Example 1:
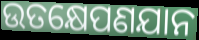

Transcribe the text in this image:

ଉତକ୍ଷେପଣଯାନ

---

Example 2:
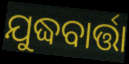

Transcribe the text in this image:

ଯୁଦ୍ଧବାର୍ତ୍ତା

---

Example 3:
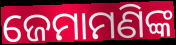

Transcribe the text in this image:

ଜେମାମଣିଙ୍କ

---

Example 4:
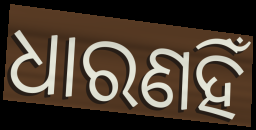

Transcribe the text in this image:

ଧାରଣହିଁ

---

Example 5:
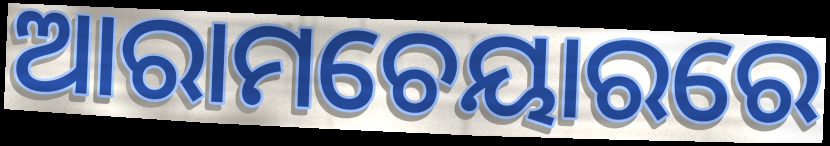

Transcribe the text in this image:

ଆରାମଚେୟାରରେ